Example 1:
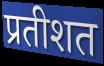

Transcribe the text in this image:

प्रतीशत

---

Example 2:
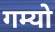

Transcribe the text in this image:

गम्यो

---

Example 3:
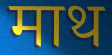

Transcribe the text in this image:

माथ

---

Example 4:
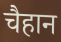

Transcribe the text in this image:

चैहान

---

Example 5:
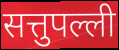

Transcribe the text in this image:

सत्तुपल्ली